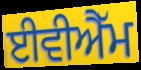
ਈਵੀਐੱਮ